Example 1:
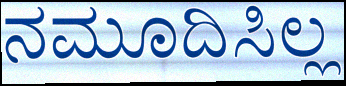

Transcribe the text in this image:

ನಮೂದಿಸಿಲ್ಲ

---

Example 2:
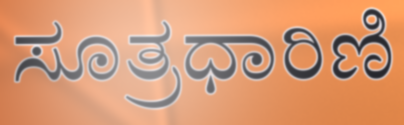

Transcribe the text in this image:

ಸೂತ್ರಧಾರಿಣಿ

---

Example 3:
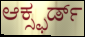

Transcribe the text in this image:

ಆಕ್ಸ್ಫರ್ಡ್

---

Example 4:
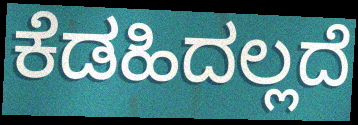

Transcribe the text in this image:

ಕೆಡಹಿದಲ್ಲದೆ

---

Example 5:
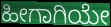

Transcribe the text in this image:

ಹೀಗಾಗಿಯೇ